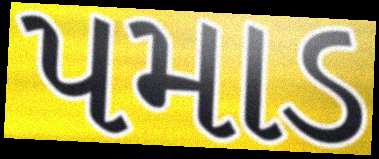
પમાડ